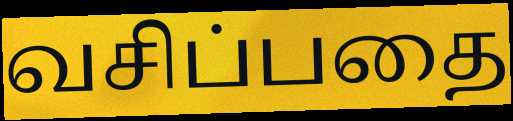
வசிப்பதை